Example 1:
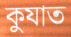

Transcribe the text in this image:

কুযাত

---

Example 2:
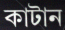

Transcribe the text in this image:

কাটান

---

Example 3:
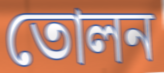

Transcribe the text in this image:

তোলন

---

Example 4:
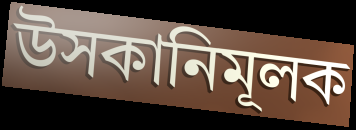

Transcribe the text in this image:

উসকানিমূলক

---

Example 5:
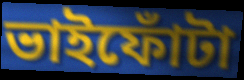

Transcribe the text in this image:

ভাইফোঁটা